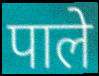
पाले